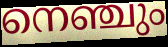
നെഞ്ചും